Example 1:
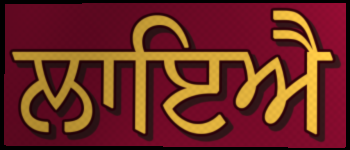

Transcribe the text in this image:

ਲਾਇਐ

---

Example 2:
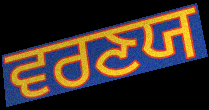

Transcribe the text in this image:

ਵਰਣਯ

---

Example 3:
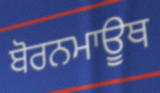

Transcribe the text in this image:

ਬੋਰਨਮਾਊਥ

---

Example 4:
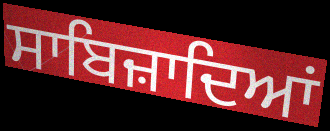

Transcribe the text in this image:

ਸਾਬਿਜ਼ਾਦਿਆਂ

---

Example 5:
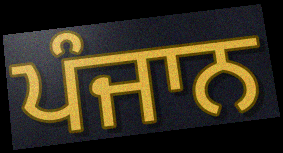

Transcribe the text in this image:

ਪੰਜਾਨ